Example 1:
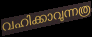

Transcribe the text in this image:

വഹിക്കാവുന്നത്ര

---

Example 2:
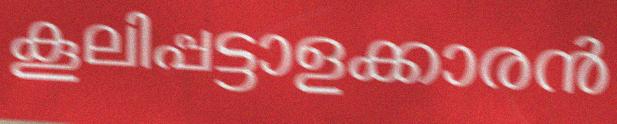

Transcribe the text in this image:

കൂലിപ്പട്ടാളക്കാരൻ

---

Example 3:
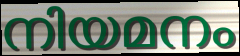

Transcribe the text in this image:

നിയമനം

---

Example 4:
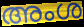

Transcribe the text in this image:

അംശ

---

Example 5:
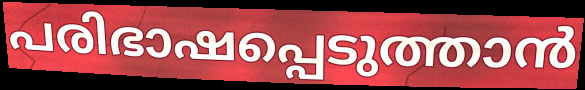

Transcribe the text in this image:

പരിഭാഷപ്പെടുത്താൻ